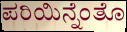
ಪರಿಯಿನ್ನೆಂತೊ